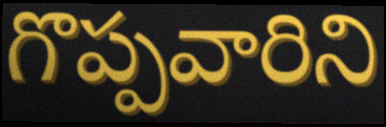
గొప్పవారిని